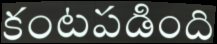
కంటపడింది